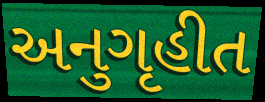
અનુગૃહીત